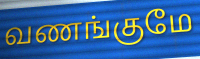
வணங்குமே